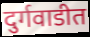
दुर्गवाडीत